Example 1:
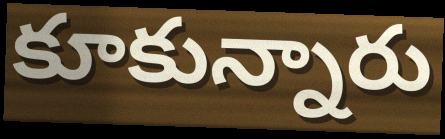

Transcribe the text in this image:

కూకున్నారు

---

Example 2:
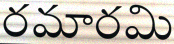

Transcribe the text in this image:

రమారమి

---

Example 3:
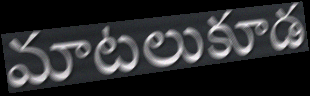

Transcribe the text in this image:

మాటలుకూడ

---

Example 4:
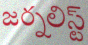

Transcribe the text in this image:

జర్నలిస్ట్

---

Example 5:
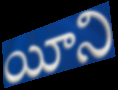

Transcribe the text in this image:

యీని